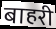
बाहरी